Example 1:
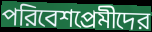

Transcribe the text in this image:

পরিবেশপ্রেমীদের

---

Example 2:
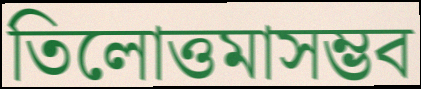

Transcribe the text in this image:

তিলোত্তমাসম্ভব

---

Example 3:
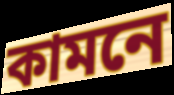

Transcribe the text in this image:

কামনে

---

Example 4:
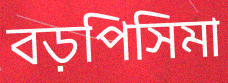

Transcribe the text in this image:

বড়পিসিমা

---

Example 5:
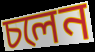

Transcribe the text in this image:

চলেন